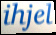
ihjel